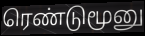
ரெண்டுமூனு